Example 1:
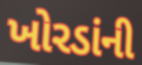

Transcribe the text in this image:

ખોરડાંની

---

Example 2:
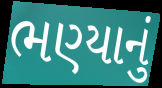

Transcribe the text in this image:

ભણ્યાનું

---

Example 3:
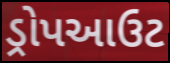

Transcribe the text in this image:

ડ્રોપઆઉટ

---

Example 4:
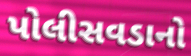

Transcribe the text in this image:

પોલીસવડાનો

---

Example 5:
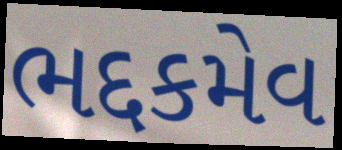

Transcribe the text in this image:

ભદ્દકમેવ